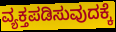
ವ್ಯಕ್ತಪಡಿಸುವುದಕ್ಕೆ